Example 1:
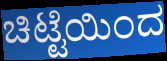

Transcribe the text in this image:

ಚಿಟ್ಟೆಯಿಂದ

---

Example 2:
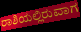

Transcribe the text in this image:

ರಾಶಿಯಲ್ಲಿರುವಾಗ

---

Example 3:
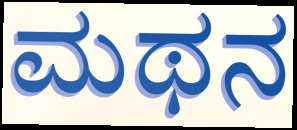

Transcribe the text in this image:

ಮಥನ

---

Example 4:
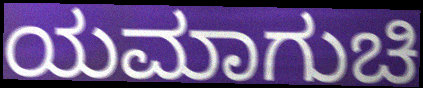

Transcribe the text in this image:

ಯಮಾಗುಚಿ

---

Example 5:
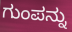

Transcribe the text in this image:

ಗುಂಪನ್ನು